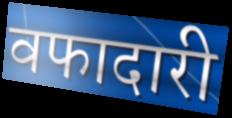
वफादारी